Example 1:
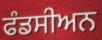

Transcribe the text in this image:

ਫੰਡਸੀਅਨ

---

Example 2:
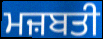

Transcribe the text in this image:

ਮਜ਼ਬਤੀ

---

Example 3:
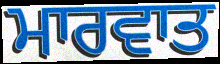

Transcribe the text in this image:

ਮਾਰਵਾਤ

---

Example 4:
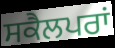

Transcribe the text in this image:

ਸਕੈਲਪਰਾਂ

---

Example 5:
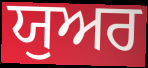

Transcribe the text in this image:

ਯੁਅਰ